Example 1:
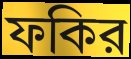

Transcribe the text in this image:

ফকির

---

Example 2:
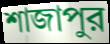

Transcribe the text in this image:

শাজাপুর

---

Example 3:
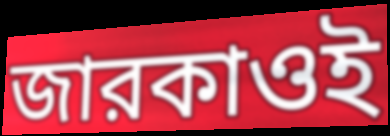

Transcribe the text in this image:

জারকাওই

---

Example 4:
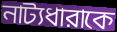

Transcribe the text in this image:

নাট্যধারাকে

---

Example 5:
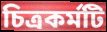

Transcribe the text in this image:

চিত্রকর্মটি